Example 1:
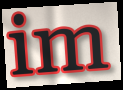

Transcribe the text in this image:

im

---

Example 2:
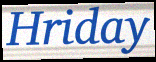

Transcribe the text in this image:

Hriday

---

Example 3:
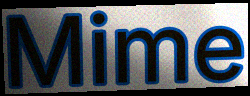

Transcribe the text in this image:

Mime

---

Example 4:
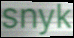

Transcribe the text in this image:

snyk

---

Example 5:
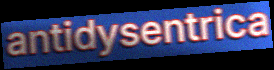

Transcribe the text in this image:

antidysentrica